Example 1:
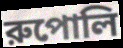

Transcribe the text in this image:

রুপোলি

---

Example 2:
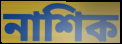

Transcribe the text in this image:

নাশিক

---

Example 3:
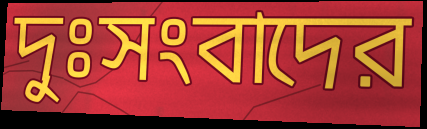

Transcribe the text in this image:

দুঃসংবাদের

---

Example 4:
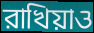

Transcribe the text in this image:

রাখিয়াও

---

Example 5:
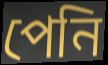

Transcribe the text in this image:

পেনি